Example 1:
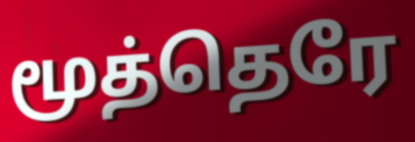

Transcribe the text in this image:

மூத்தெரே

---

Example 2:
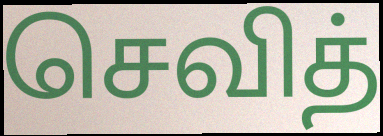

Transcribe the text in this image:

செவித்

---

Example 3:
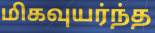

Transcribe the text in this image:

மிகவுயர்ந்த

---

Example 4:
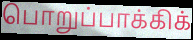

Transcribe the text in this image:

பொறுப்பாக்கிக்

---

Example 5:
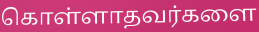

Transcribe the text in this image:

கொள்ளாதவர்களை